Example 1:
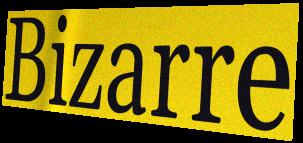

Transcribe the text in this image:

Bizarre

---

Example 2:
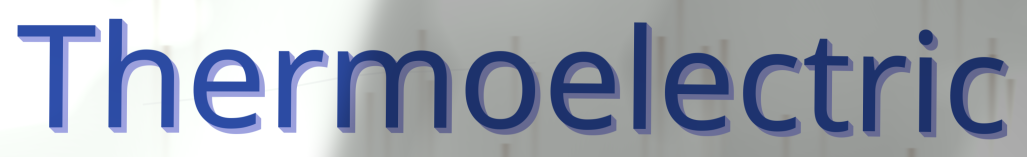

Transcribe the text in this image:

Thermoelectric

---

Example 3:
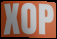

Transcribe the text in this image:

XOP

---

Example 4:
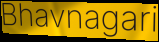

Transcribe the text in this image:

Bhavnagari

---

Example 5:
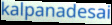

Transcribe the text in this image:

kalpanadesai